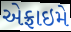
એફ્રાઇમે